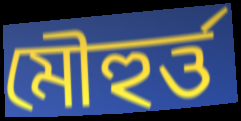
মৌহুৰ্ত্ত